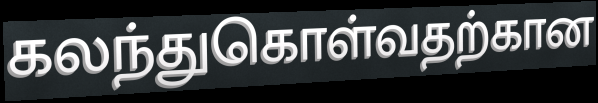
கலந்துகொள்வதற்கான